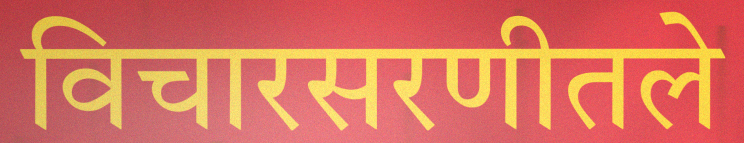
विचारसरणीतले